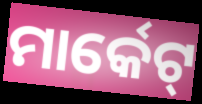
ମାର୍କେଟ୍